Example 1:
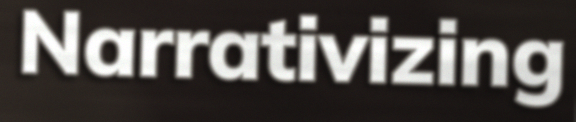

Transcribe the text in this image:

Narrativizing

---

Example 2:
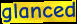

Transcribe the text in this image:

glanced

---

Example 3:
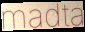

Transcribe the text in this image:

madta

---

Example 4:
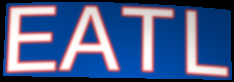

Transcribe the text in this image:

EATL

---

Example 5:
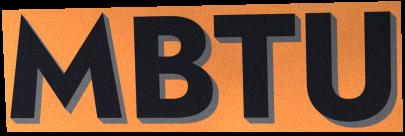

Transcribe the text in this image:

MBTU